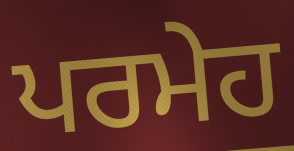
ਪਰਮੇਹ